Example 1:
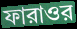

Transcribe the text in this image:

ফারাওর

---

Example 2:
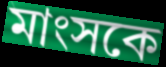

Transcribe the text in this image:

মাংসকে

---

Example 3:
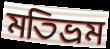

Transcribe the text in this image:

মতিভ্রম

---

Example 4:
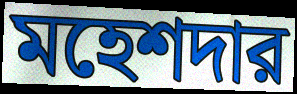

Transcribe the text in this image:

মহেশদার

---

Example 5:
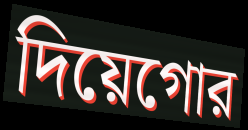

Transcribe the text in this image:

দিয়েগোর